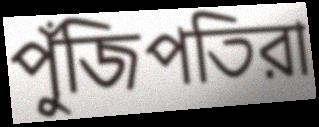
পুঁজিপতিরা